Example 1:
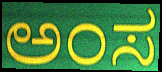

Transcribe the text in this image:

ಅಂಸ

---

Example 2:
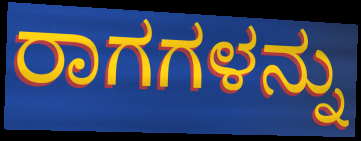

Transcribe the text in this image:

ರಾಗಗಳನ್ನು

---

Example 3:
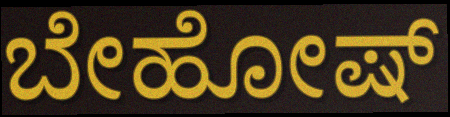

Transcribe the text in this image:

ಬೇಹೋಷ್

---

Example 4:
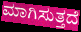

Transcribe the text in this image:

ಮಾಗಿಸುತ್ತದೆ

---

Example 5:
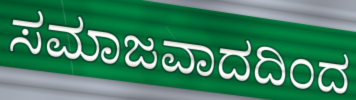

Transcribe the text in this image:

ಸಮಾಜವಾದದಿಂದ